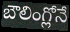
బౌలింగ్లోనే